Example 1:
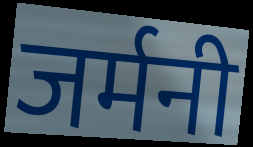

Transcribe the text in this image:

जर्मनी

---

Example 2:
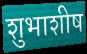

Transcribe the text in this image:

शुभाशीष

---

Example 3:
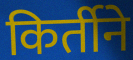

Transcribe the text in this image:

किर्तीने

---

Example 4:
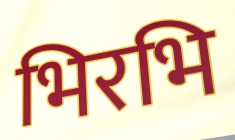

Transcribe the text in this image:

भिरभि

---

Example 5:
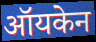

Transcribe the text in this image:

ऑयकेन